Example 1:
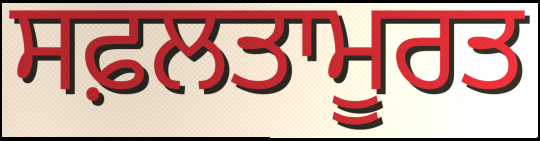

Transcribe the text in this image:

ਸਫ਼ਲਤਾਮੂਰਤ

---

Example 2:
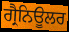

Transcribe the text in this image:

ਗ੍ਰੈਨਿਊਲਰ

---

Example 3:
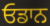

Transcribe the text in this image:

ਓਡਾਨ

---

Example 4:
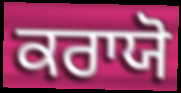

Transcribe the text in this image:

ਕਰਾਯੋ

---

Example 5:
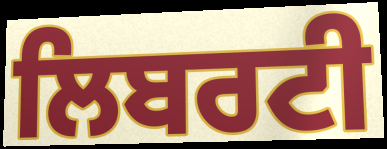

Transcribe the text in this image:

ਲਿਬਰਟੀ